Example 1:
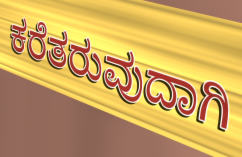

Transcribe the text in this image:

ಕರೆತರುವುದಾಗಿ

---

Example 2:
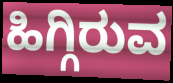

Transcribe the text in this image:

ಹಿಗ್ಗಿರುವ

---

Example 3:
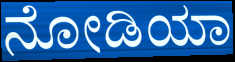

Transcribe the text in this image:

ನೋಡಿಯಾ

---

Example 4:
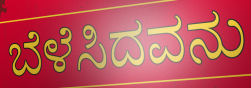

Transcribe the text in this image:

ಬೆಳೆಸಿದವನು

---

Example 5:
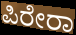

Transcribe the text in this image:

ಪಿರೇರಾ